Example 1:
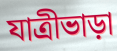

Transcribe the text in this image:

যাত্রীভাড়া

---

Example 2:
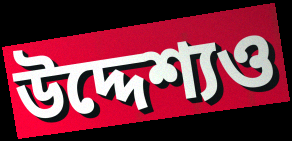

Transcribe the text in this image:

উদ্দেশ্যও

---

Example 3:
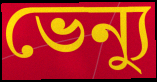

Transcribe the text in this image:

ভেন্যু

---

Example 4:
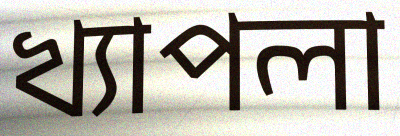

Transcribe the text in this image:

খ্যাপলা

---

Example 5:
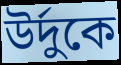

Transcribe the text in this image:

উর্দুকে